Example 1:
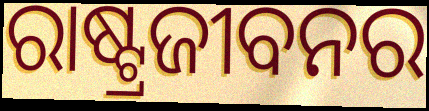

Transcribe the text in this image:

ରାଷ୍ଟ୍ରଜୀବନର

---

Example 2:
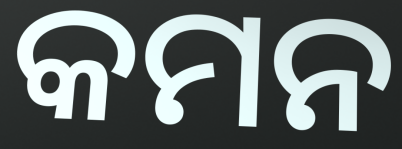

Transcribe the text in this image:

କମନ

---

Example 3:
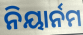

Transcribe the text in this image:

ନିୟାର୍ନମ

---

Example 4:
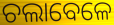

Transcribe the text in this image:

ଚଲାବେଳେ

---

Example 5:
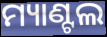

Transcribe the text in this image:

ମ୍ୟାଣ୍ଟଲ